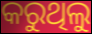
କରୁଥିଲୁ